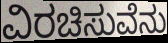
ವಿರಚಿಸುವೆನು